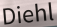
Diehl